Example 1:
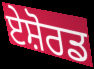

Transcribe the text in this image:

ਏਸ਼ੋਰਡ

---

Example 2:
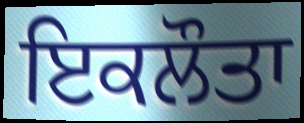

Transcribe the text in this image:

ਇਕਲੌਤਾ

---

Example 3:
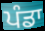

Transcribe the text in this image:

ਪੰਡਾ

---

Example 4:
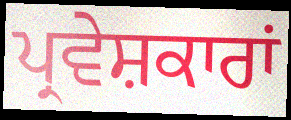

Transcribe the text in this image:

ਪ੍ਰਵੇਸ਼ਕਾਰਾਂ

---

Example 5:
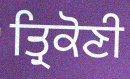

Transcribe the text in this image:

ਤ੍ਰਿਕੋਣੀ